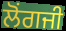
ਲੋਂਗਜੀ